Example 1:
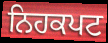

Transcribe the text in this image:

ਨਿਹਕਪਟ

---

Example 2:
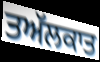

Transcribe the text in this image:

ਤਅੱਲਕਾਤ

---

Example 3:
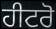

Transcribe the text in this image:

ਹੀਟਰੋ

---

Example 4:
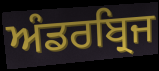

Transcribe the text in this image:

ਅੰਡਰਬ੍ਰਿਜ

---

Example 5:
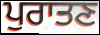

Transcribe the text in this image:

ਪੁਰਾਤਣ